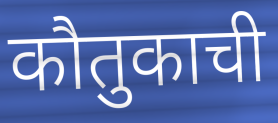
कौतुकाची